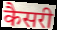
कैसरी